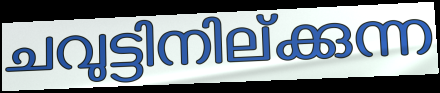
ചവുട്ടിനില്ക്കുന്ന